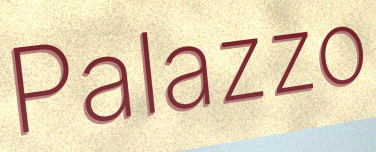
Palazzo